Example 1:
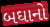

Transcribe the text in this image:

બઘાનો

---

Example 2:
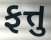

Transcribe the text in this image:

ફત્તુ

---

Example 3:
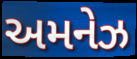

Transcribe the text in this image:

અમનેઝ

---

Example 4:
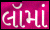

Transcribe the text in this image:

લૉમાં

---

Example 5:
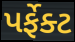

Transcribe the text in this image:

પર્ફેક્ટ